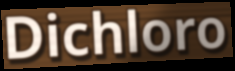
Dichloro